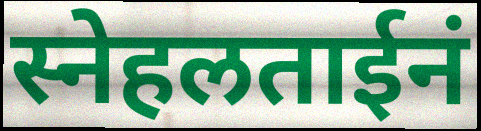
स्नेहलताईनं